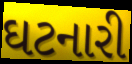
ઘટનારી